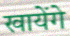
खायेंगे